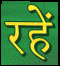
रहें